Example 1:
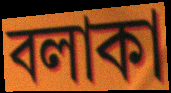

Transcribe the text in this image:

বলাকা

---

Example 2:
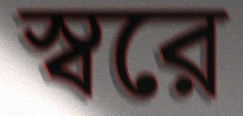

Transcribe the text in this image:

স্বরে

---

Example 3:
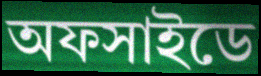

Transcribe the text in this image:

অফসাইডে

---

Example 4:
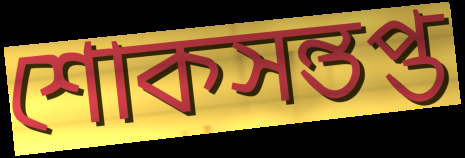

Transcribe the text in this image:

শোকসন্তপ্ত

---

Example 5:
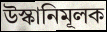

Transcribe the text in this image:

উস্কানিমূলক